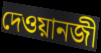
দেওয়ানজী